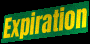
Expiration